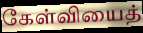
கேள்வியைத்